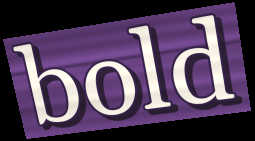
bold